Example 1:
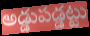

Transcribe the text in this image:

అడ్డుపడ్డట్టు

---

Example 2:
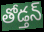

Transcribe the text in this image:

తోడ్తన్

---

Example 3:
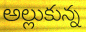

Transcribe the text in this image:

అల్లుకున్న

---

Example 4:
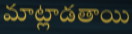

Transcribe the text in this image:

మాట్లాడతాయి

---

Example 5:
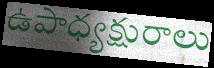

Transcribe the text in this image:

ఉపాధ్యక్షురాలు